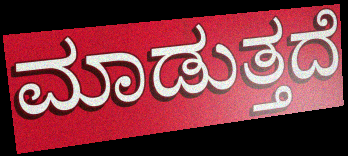
ಮಾಡುತ್ತದೆ